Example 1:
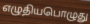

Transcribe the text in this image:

எழுதியபொழுது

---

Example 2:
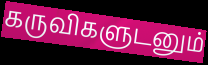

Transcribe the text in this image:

கருவிகளுடனும்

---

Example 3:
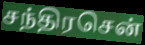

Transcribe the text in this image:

சந்திரசென்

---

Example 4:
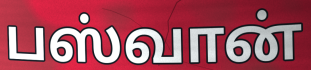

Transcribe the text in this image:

பஸ்வான்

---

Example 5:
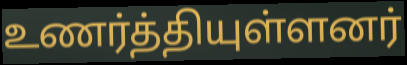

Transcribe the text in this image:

உணர்த்தியுள்ளனர்